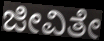
ಜೀವಿತೇ